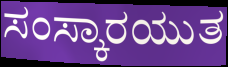
ಸಂಸ್ಕಾರಯುತ